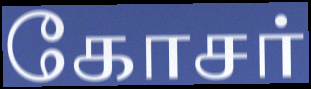
கோசர்